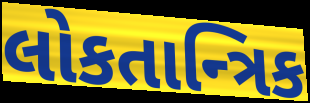
લોકતાન્ત્રિક